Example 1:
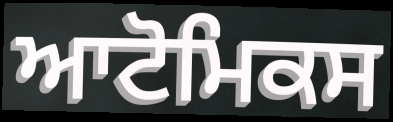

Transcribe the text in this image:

ਆਟੋਮਿਕਸ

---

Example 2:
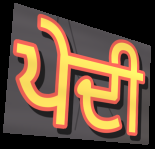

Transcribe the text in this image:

ਪੇਦੀ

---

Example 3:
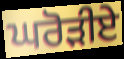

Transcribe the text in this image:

ਘਰੋੜੀਏ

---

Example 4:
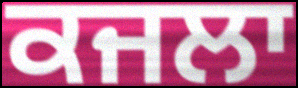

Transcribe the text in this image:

ਕਜਲਾ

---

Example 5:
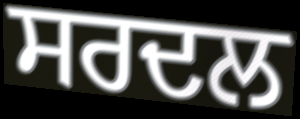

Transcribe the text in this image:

ਸਰਦਲ